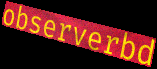
observerbd